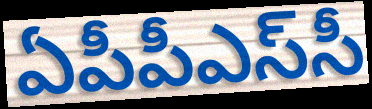
ఏపీపీఎస్‌సీ